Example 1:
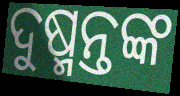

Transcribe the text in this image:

ଦୁଷ୍ମନ୍ତଙ୍କ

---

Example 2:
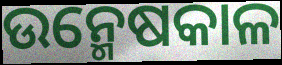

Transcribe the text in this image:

ଉନ୍ମେଷକାଳ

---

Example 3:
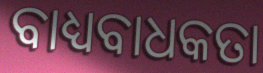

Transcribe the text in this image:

ବାଧ୍ୟବାଧକତା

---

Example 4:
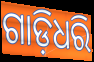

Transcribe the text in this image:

ଗାଡ଼ିଧରି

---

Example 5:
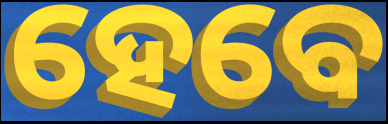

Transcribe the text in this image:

ହେବେ